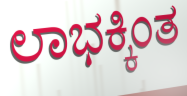
ಲಾಭಕ್ಕಿಂತ